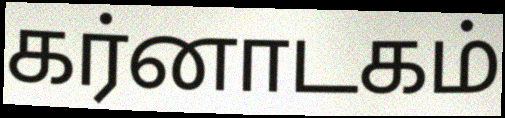
கர்னாடகம்